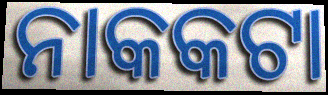
ନାକକଟା